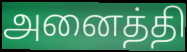
அனைத்தி